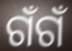
ଗଁଗଁ